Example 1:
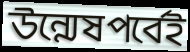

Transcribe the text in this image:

উন্মেষপর্বেই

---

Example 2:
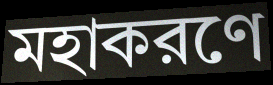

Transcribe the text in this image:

মহাকরণে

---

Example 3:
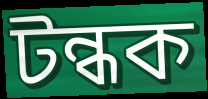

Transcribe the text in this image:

টন্ধক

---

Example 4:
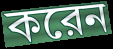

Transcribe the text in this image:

করেন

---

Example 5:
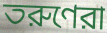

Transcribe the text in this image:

তরুণেরা